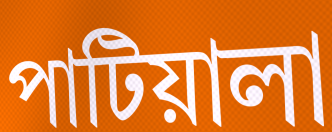
পাটিয়ালা